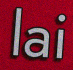
lai